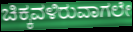
ಚಿಕ್ಕವಳಿರುವಾಗಲೇ